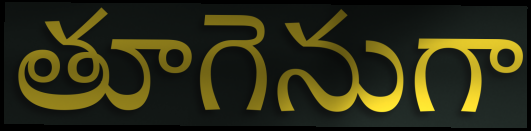
తూగెనుగా